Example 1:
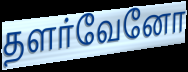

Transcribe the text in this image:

தளர்வேனோ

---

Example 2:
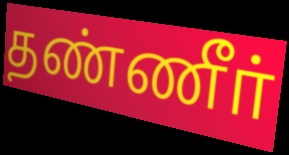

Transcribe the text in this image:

தண்ணீர்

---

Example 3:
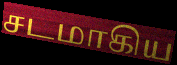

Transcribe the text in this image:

சடமாகிய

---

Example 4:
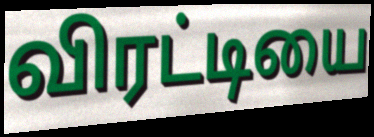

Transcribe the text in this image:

விரட்டியை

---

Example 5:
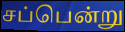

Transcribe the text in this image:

சப்பென்று